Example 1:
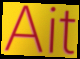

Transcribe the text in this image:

Ait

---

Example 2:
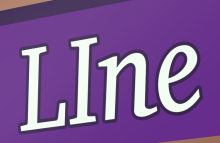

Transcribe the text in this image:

LIne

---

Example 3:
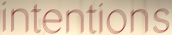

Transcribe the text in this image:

intentions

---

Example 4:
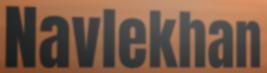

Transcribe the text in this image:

Navlekhan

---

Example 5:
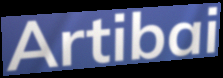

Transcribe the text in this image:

Artibai